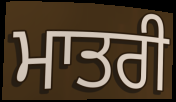
ਮਾਤਰੀ